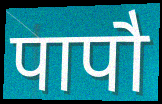
पापौ